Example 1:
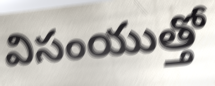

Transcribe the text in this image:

విసంయుత్తో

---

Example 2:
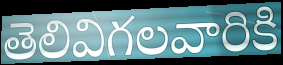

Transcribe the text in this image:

తెలివిగలవారికి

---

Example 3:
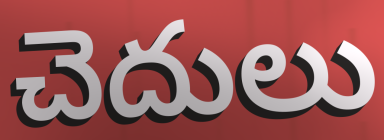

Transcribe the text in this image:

చెదులు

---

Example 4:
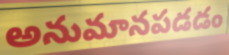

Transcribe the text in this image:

అనుమానపడడం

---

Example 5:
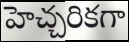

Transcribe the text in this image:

హెచ్చరికగా